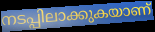
നടപ്പിലാക്കുകയാണ്